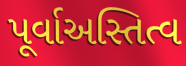
પૂર્વાઅસ્તિત્વ